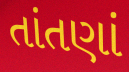
તાંતણાં